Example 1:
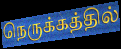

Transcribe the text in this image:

நெருக்கத்தில்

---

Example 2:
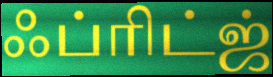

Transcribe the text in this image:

ஃப்ரிட்ஜ்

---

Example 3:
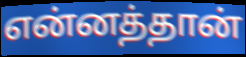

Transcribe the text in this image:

என்னத்தான்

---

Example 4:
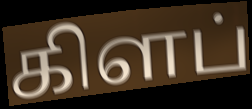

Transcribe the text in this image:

கிளப்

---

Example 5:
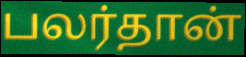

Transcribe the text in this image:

பலர்தான்